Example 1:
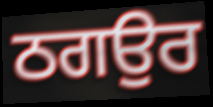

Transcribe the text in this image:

ਠਗਉਰ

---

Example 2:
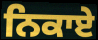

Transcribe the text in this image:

ਨਿਕਾਏ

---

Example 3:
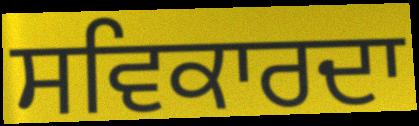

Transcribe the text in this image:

ਸਵਿਕਾਰਦਾ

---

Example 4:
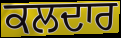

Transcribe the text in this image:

ਕਲਦਾਰ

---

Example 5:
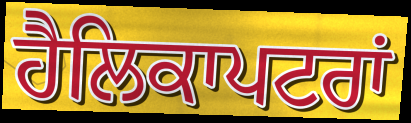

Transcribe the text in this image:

ਹੈਲਿਕਾਪਟਰਾਂ